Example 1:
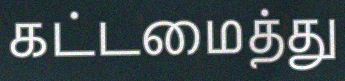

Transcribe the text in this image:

கட்டமைத்து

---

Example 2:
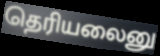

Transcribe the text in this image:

தெரியலைனு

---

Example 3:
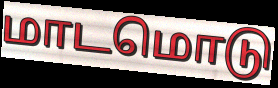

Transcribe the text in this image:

மாடமொடு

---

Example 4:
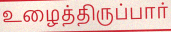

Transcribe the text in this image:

உழைத்திருப்பார்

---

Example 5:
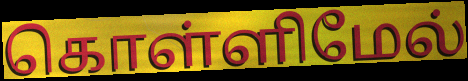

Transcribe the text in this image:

கொள்ளிமேல்